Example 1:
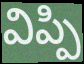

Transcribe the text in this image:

విప్పి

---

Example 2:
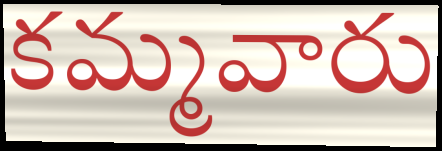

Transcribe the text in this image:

కమ్మవారు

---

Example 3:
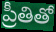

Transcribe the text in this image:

ప్రీతితో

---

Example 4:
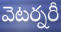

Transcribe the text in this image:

వెటర్నరీ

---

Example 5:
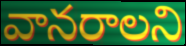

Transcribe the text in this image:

వానరాలని